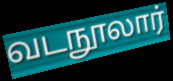
வடநூலார்